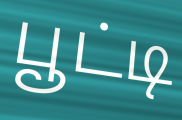
பூட்டி